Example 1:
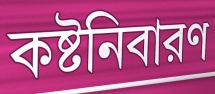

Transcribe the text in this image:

কষ্টনিবারণ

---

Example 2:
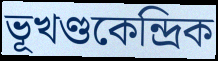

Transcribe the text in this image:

ভূখণ্ডকেন্দ্রিক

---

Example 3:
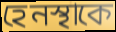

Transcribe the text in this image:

হেনস্থাকে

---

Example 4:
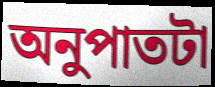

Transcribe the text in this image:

অনুপাতটা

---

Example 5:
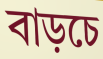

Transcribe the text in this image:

বাড়চে